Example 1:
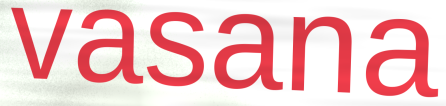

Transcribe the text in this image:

vasana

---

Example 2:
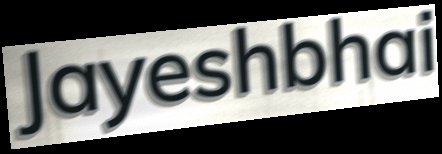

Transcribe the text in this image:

Jayeshbhai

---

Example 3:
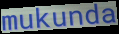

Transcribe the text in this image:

mukunda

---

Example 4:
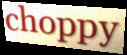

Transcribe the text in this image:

choppy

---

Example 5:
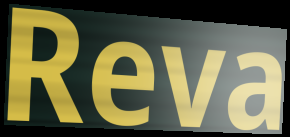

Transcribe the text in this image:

Reva